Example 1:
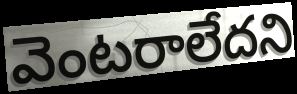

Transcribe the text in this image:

వెంటరాలేదని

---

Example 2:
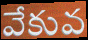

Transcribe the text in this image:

వేకువ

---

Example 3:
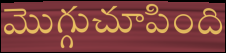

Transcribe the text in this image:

మొగ్గుచూపింది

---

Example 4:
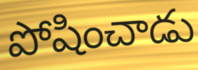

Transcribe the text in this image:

పోషించాడు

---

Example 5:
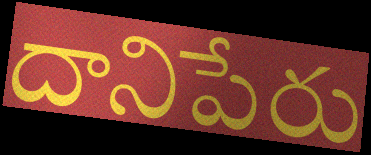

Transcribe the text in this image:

దానిపేరు